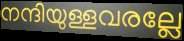
നന്ദിയുള്ളവരല്ലേ